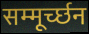
सम्मूर्च्छन